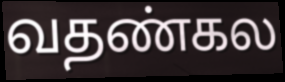
வதண்கல